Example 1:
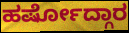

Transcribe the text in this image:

ಹರ್ಷೋದ್ಗಾರ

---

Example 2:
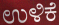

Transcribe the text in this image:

ಉಳಿಕೆ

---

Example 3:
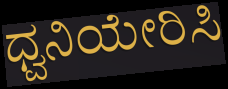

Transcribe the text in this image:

ಧ್ವನಿಯೇರಿಸಿ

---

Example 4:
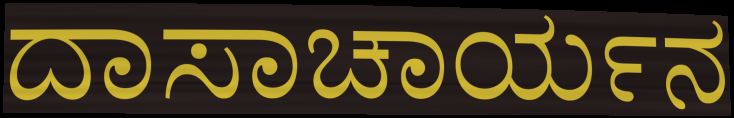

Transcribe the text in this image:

ದಾಸಾಚಾರ್ಯನ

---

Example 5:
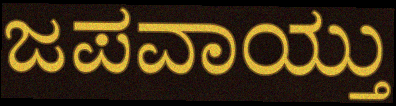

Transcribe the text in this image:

ಜಪವಾಯ್ತು